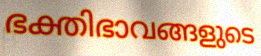
ഭക്തിഭാവങ്ങളുടെ